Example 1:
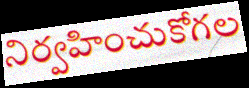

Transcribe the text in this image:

నిర్వహించుకోగల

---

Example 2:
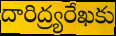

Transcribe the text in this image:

దారిద్ర్యరేఖకు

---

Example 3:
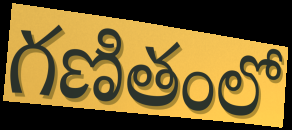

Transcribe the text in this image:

గణితంలో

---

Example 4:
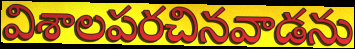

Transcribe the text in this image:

విశాలపరచినవాడను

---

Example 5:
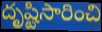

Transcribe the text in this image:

దృష్టిసారించి